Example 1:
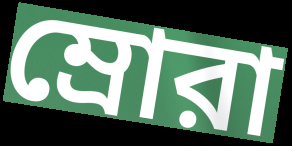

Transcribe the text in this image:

ম্রোরা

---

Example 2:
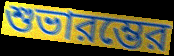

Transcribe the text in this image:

শুভারম্ভের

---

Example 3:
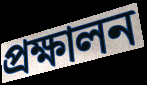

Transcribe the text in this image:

প্রক্ষালন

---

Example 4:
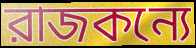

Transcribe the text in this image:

রাজকন্যে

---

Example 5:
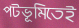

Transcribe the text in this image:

পটভূমিতেই